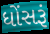
ધોંસરૂં